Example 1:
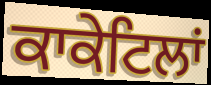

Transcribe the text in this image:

ਕਾਕੇਟਿਲਾਂ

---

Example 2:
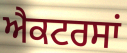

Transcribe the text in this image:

ਐਕਟਰਸਾਂ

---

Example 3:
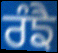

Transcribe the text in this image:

ਰੰਙੈ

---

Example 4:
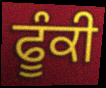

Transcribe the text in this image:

ਫੂੰਕੀ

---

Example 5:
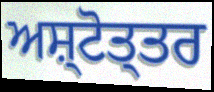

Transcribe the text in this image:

ਅਸ਼੍ਟੋਤ੍ਤਰ